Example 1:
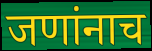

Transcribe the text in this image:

जणांनाच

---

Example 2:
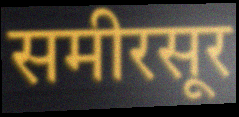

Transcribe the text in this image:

समीरसूर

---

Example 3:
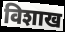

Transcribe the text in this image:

विशाख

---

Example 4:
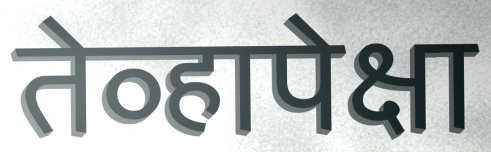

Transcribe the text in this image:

तेव्हापेक्षा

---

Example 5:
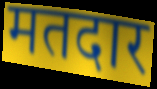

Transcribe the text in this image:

मतदार